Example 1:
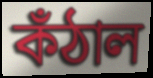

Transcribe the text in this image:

কঁঠাল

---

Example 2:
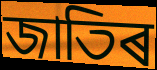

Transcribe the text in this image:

জাতিৰ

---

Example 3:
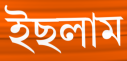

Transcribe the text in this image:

ইছলাম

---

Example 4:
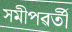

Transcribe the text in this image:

সমীপৱৰ্তী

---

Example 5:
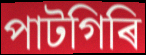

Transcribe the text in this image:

পাটগিৰি